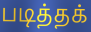
படித்தக்